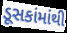
ડૂસકાંમાંથી